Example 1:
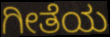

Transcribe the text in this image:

ಗೀತೆಯ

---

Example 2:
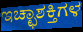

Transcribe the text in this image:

ಇಚ್ಛಾಶಕ್ತಿಗಳ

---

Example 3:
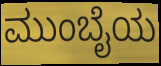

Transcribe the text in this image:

ಮುಂಬೈಯ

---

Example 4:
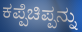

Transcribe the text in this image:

ಕಪ್ಪೆಚಿಪ್ಪನ್ನು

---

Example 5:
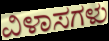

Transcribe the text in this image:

ವಿಳಾಸಗಳು